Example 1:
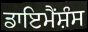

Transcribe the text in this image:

ਡਾਇਮੈਂਸ਼ੰਸ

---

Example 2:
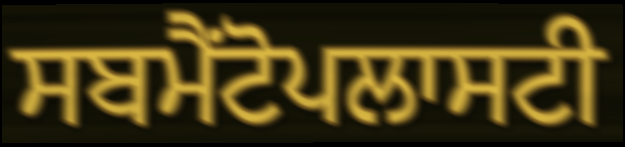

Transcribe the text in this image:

ਸਬਮੈਂਟੋਪਲਾਸਟੀ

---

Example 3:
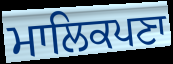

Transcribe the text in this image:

ਮਾਲਿਕਪਣਾ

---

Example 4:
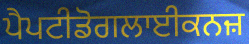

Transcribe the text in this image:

ਪੈਪਟੀਡੋਗਲਾਈਕਨਜ਼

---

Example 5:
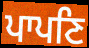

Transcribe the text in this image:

ਪਾਪਣਿ